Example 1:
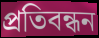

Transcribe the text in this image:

প্ৰতিবন্ধন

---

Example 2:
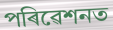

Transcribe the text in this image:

পৰিৱেশনত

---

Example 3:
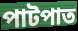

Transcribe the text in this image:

পাটপাত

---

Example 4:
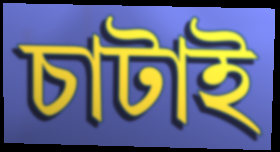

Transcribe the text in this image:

চাটাই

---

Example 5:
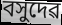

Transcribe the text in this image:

বসুদেৱ